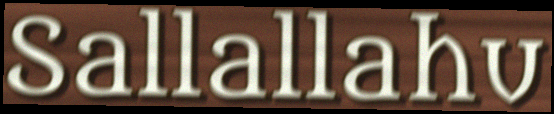
Sallallahu